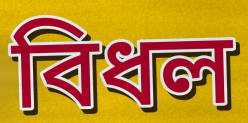
বিধল